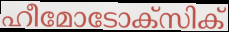
ഹീമോടോക്സിക്